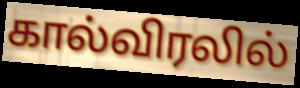
கால்விரலில்